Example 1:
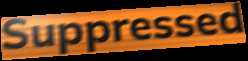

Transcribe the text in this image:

Suppressed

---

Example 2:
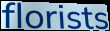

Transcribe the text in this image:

florists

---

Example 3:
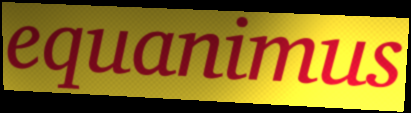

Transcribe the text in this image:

equanimus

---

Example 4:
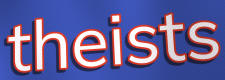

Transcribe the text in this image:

theists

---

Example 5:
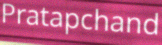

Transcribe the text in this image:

Pratapchand